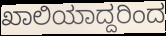
ಖಾಲಿಯಾದ್ದರಿಂದ